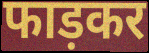
फाड़कर